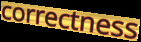
correctness